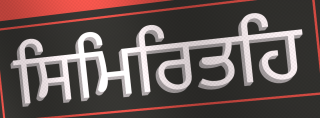
ਸਿਮਿਰਿਤਹਿ